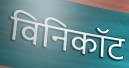
विनिकॉट